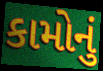
કામોનું